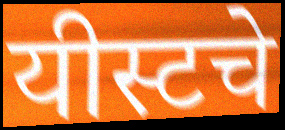
यीस्टचे